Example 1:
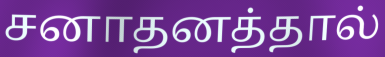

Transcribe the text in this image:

சனாதனத்தால்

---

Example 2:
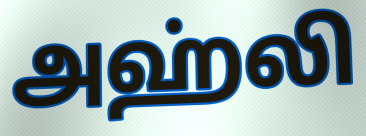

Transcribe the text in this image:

அஹ்லி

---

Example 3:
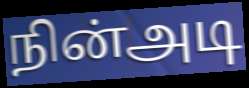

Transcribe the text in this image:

நின்அடி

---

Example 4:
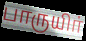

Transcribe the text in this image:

பாருயிர்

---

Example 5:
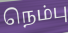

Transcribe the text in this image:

நெம்பு